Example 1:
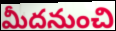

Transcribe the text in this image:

మీదనుంచి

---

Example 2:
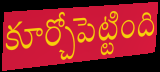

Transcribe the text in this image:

కూర్చోపెట్టింది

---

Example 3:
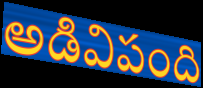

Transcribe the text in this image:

అడివిపంది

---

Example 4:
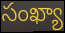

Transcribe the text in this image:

సంఖ్యా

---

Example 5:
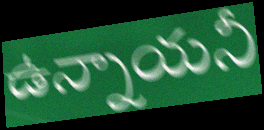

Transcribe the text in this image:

ఉన్నాయనీ